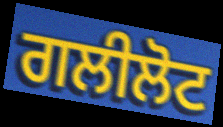
ਗਲੀਲੋਟ